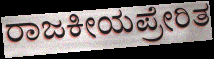
ರಾಜಕೀಯಪ್ರೇರಿತ